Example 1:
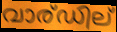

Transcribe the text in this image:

വാര്ഡില്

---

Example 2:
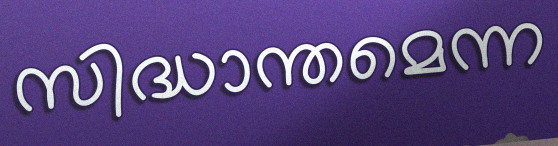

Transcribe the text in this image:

സിദ്ധാന്തമെന്ന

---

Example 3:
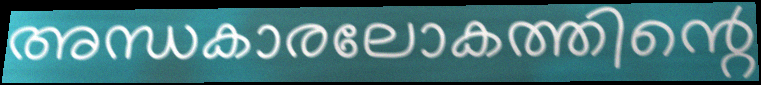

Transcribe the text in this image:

അന്ധകാരലോകത്തിന്റെ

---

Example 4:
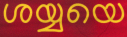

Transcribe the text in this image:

ശയ്യയെ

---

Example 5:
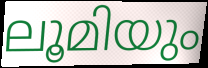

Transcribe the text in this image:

ലൂമിയും